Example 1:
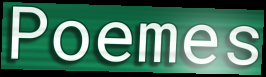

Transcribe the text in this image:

Poemes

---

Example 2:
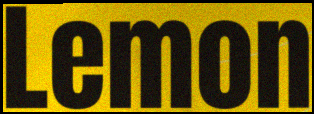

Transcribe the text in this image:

Lemon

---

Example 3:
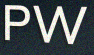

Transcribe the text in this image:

PW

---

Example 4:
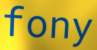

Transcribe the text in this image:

fony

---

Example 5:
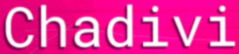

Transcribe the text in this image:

Chadivi